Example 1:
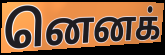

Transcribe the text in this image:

னெனக்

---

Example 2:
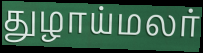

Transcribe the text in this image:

துழாய்மலர்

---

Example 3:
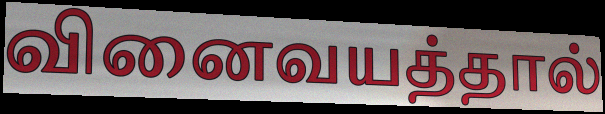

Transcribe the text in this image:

வினைவயத்தால்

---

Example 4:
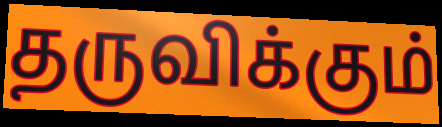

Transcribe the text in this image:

தருவிக்கும்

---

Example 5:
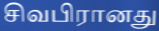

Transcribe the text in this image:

சிவபிரானது